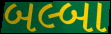
બલ્બા